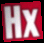
Hx